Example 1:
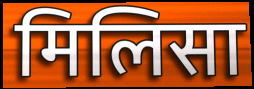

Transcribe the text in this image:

मिलिसा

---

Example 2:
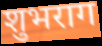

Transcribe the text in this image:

शुभराग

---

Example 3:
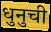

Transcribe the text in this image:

धुनुची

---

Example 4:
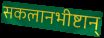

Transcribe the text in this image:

सकलानभीष्टान्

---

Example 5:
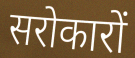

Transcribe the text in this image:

सरोकारों